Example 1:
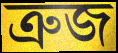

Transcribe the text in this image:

ত্রুজ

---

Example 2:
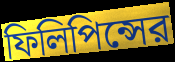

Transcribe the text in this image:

ফিলিপিন্সের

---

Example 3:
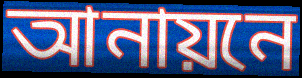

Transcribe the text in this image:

আনায়নে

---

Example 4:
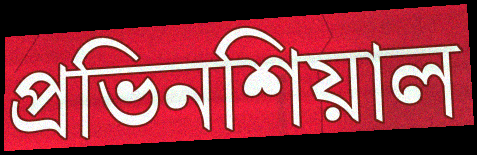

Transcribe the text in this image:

প্রভিনশিয়াল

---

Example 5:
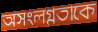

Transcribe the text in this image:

অসংলগ্নতাকে